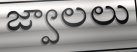
జ్వాలలు